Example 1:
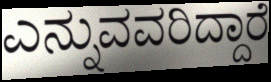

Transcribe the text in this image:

ಎನ್ನುವವರಿದ್ದಾರೆ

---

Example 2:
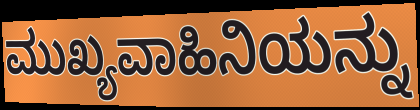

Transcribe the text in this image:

ಮುಖ್ಯವಾಹಿನಿಯನ್ನು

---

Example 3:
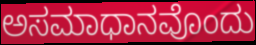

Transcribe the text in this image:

ಅಸಮಾಧಾನವೊಂದು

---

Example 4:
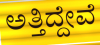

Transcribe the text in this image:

ಅತ್ತಿದ್ದೇವೆ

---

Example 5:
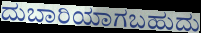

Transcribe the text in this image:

ದುಬಾರಿಯಾಗಬಹುದು